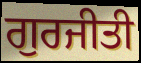
ਗੁਰਜੀਤੀ